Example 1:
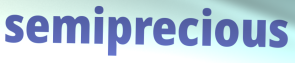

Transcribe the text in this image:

semiprecious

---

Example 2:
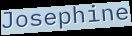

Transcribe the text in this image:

Josephine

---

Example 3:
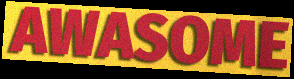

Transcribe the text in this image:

AWASOME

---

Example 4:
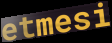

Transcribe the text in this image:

etmesi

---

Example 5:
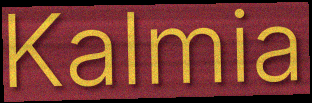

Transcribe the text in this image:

Kalmia